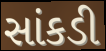
સાંકડી